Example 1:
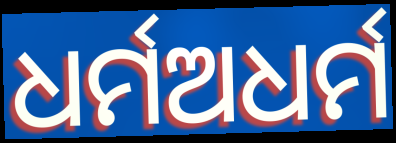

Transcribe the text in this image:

ଧର୍ମଅଧର୍ମ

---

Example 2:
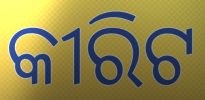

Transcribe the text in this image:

କୀରିଟ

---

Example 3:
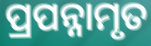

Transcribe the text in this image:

ପ୍ରପନ୍ନାମୃତ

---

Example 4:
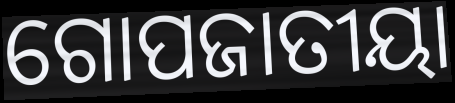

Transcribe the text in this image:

ଗୋପଜାତୀୟା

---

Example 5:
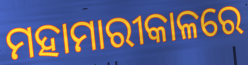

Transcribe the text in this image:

ମହାମାରୀକାଳରେ